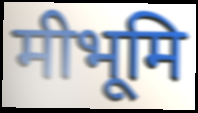
मीभूमि